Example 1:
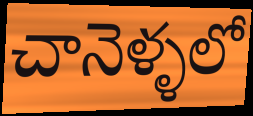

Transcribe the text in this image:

చానెళ్ళలో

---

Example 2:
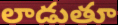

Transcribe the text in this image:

లాడుతూ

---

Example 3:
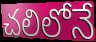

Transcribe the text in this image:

చలిలోనే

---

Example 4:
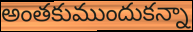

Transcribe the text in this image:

అంతకుముందుకన్నా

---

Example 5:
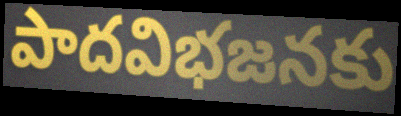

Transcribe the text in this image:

పాదవిభజనకు